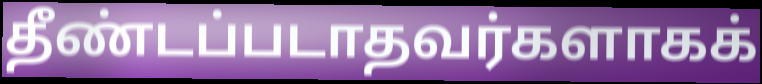
தீண்டப்படாதவர்களாகக்